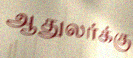
ஆதுலர்க்கு